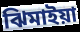
ঝিমাইয়া